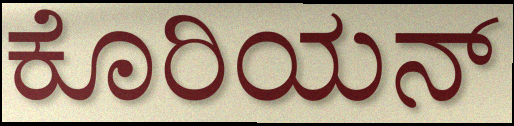
ಕೊರಿಯನ್